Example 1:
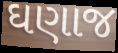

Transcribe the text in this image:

ઘણાજ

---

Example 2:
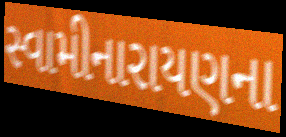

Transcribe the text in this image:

સ્વામીનારાયણના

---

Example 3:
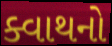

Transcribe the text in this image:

ક્વાથનો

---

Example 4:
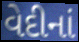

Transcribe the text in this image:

વેદીનાં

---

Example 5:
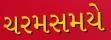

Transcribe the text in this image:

ચરમસમયે